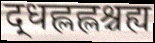
द्धह्लह्लश्चह्य